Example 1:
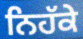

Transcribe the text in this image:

ਨਿਹੱਕੇ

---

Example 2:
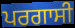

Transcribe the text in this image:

ਪਰਗਾਸੀ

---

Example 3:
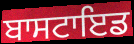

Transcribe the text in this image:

ਬਾਸਟਾਇਡ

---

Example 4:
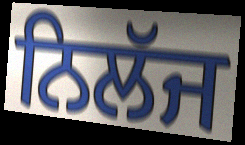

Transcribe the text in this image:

ਨਿਲੱਜ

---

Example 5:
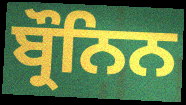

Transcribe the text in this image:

ਬ੍ਰੌਨਿਨ